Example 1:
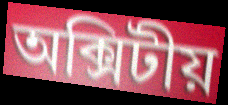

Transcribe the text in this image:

অক্সিটীয়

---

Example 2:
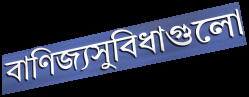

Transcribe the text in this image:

বাণিজ্যসুবিধাগুলো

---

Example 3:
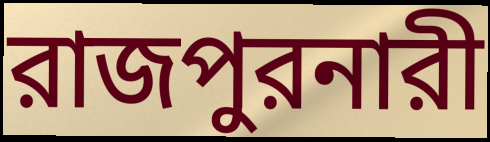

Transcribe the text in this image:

রাজপুরনারী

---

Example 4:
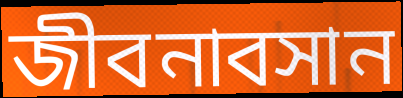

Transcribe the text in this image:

জীবনাবসান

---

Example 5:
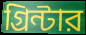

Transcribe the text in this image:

গ্রিন্টার